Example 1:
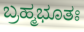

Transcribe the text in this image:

ಬ್ರಹ್ಮಭೂತಃ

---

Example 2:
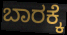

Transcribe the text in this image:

ಬಾರಕ್ಕೆ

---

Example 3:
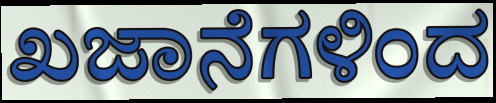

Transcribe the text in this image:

ಖಜಾನೆಗಳಿಂದ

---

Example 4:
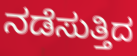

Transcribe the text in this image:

ನಡೆಸುತ್ತಿದ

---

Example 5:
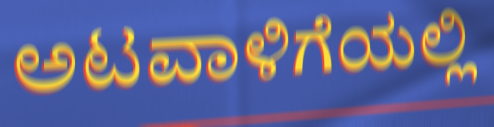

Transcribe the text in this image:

ಅಟವಾಳಿಗೆಯಲ್ಲಿ